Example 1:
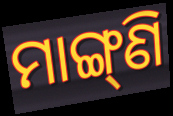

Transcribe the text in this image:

ମାଙ୍ଗ୍‌ଣି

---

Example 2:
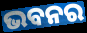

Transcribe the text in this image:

ଭବନର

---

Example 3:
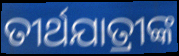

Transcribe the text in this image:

ତୀର୍ଥଯାତ୍ରୀଙ୍କ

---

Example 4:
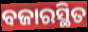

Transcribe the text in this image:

ବଜାରସ୍ଥିତ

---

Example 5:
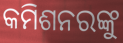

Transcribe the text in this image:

କମିଶନରଙ୍କୁ